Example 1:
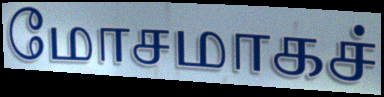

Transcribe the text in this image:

மோசமாகச்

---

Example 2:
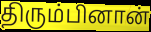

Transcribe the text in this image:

திரும்பினான்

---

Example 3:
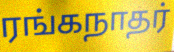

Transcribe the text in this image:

ரங்கநாதர்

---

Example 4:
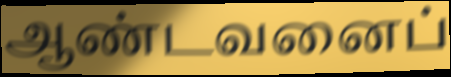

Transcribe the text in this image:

ஆண்டவனைப்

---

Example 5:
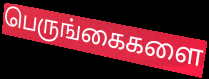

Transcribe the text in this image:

பெருங்கைகளை